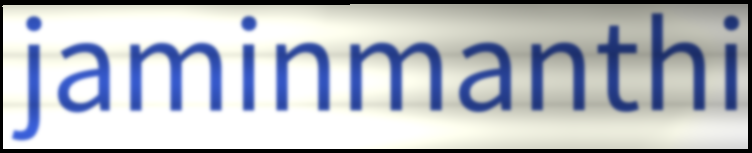
jaminmanthi